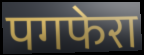
पगफेरा